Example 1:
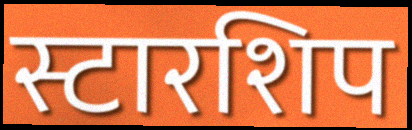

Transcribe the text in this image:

स्टारशिप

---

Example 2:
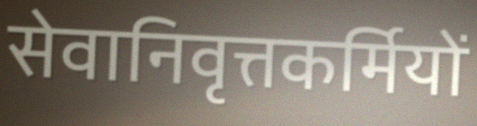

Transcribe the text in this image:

सेवानिवृत्तकर्मियों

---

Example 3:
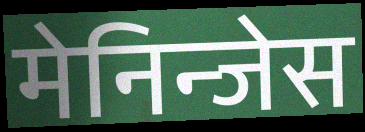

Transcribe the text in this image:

मेनिन्जेस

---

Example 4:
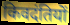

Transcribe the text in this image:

किवदंतियों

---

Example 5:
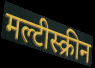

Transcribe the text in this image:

मल्टीस्क्रीन